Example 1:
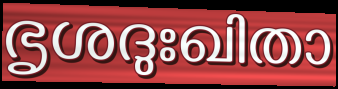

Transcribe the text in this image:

ഭൃശദുഃഖിതാ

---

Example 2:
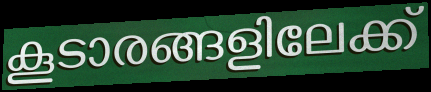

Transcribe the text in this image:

കൂടാരങ്ങളിലേക്ക്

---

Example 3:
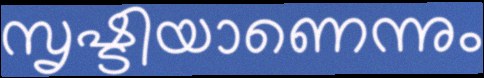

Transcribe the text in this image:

സൃഷ്ടിയാണെന്നും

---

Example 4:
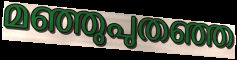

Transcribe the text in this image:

മഞ്ഞുപുതഞ്ഞ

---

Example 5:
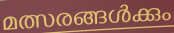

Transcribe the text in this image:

മത്സരങ്ങൾക്കും